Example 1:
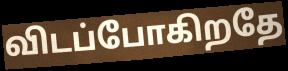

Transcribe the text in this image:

விடப்போகிறதே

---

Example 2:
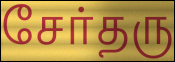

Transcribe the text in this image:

சேர்தரு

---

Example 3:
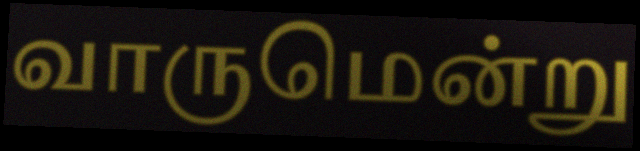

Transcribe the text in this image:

வாருமென்று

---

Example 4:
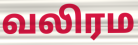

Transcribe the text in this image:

வலிரம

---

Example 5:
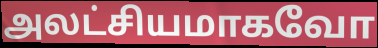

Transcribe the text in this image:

அலட்சியமாகவோ